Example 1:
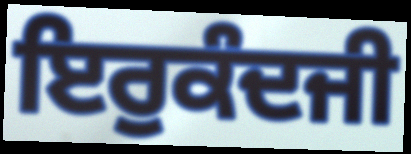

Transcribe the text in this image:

ਇਰੁਕੰਦਜੀ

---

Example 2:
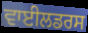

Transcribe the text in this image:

ਵਾਈਲਡਰਸ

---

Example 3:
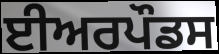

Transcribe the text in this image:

ਈਅਰਪੌਡਸ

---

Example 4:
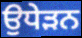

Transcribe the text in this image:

ਉਧੇੜਨ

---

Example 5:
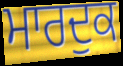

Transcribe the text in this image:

ਮਾਰਦੁਕ